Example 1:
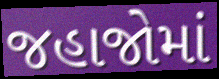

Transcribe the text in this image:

જહાજોમાં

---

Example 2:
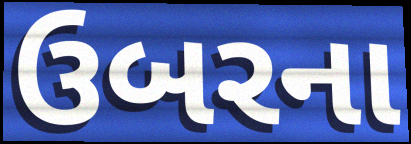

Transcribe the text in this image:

ઉબરના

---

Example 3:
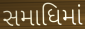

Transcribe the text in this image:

સમાધિમાં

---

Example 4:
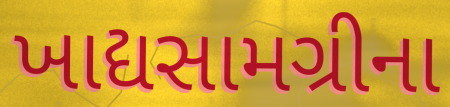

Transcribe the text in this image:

ખાદ્યસામગ્રીના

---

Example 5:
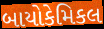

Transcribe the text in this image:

બાયોકેમિકલ